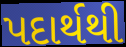
પદાર્થથી